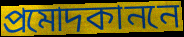
প্রমোদকাননে